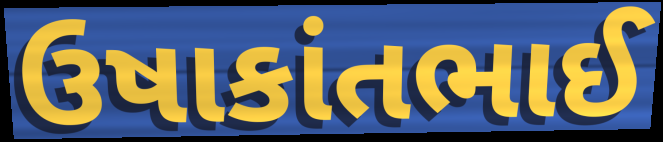
ઉષાકાંતભાઈ